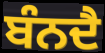
ਬੰਨਦੈ